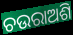
ଚଉରାଅଶି